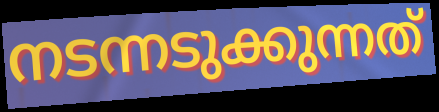
നടന്നടുക്കുന്നത്